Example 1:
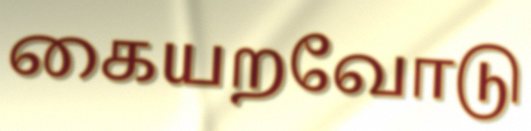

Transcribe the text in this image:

கையறவோடு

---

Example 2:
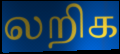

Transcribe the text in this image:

லறிக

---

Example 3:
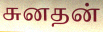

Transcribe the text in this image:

சுனதன்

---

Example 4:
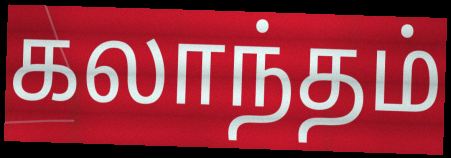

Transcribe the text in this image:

கலாந்தம்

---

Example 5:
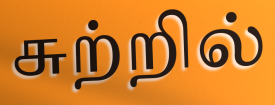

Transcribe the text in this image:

சுற்றில்